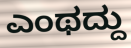
ಎಂಥದ್ದು